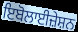
ਇਬੋਲਾਈਜ਼ੇਸ਼ਨ